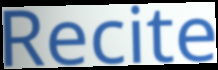
Recite